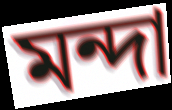
মন্দা